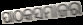
ପାଠକସମାଜର